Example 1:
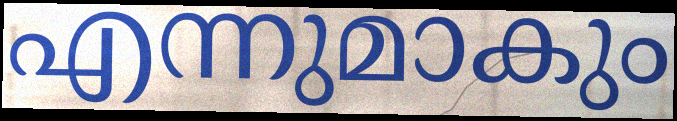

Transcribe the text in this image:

എന്നുമാകും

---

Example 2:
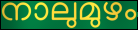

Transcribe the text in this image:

നാലുമുഴം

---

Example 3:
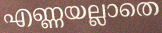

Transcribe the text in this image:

എണ്ണയല്ലാതെ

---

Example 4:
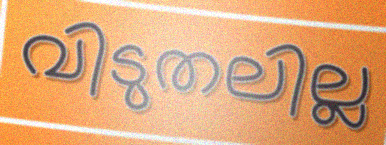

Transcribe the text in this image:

വിടുതലില്ല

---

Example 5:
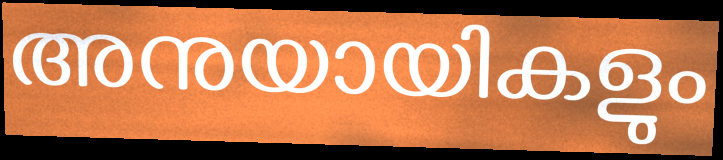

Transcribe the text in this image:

അനുയായികളും